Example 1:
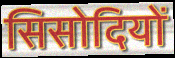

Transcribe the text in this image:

सिसोदियों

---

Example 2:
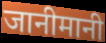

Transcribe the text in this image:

जानीमानी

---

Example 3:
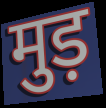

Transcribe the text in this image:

मुड़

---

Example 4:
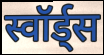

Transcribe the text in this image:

स्वॉर्ड्स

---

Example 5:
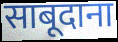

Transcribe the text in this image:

साबूदाना